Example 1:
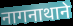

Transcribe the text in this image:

नागनाथाने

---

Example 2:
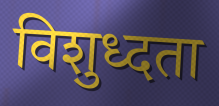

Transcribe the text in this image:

विशुध्दता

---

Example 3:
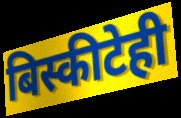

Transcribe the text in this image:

बिस्कीटेही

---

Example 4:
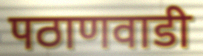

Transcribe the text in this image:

पठाणवाडी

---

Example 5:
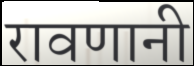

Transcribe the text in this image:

रावणानी